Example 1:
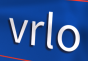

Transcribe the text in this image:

vrlo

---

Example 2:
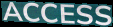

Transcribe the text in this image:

ACCESS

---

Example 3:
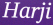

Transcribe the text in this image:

Harji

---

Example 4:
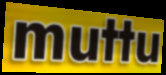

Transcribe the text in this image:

muttu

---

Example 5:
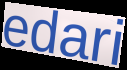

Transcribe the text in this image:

edari